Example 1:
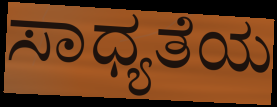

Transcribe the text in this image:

ಸಾಧ್ಯತೆಯ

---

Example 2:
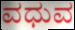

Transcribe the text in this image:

ವಧುವ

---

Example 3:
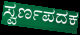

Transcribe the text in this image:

ಸ್ವರ್ಣಪದಕ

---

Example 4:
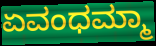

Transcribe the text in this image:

ಏವಂಧಮ್ಮಾ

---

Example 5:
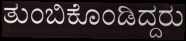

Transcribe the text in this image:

ತುಂಬಿಕೊಂಡಿದ್ದರು